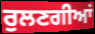
ਰੁਲਣਗੀਆਂ